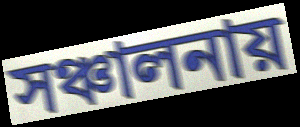
সঞ্চালনায়